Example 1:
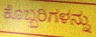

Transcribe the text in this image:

ಕೊಬ್ಬರಿಗಳನ್ನು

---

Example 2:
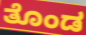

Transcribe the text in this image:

ತೊಂಡ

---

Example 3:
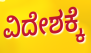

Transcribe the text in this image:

ವಿದೇಶಕ್ಕೆ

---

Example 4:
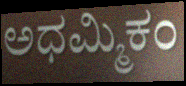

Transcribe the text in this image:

ಅಧಮ್ಮಿಕಂ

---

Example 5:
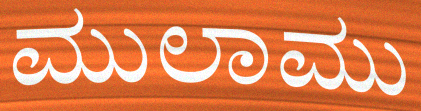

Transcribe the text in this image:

ಮುಲಾಮು